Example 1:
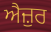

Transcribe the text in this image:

ਐਜ਼ੁਰ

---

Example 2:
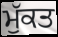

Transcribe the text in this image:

ਮੁੱਕਤ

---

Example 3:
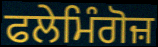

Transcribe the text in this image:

ਫਲੇਮਿੰਗੋਜ਼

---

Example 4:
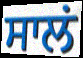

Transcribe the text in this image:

ਸਾਲਂ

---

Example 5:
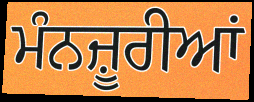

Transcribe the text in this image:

ਮੰਨਜ਼ੂਰੀਆਂ